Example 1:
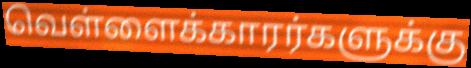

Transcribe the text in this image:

வெள்ளைக்காரர்களுக்கு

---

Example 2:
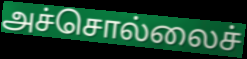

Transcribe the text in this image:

அச்சொல்லைச்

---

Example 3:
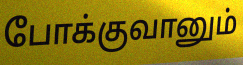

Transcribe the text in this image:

போக்குவானும்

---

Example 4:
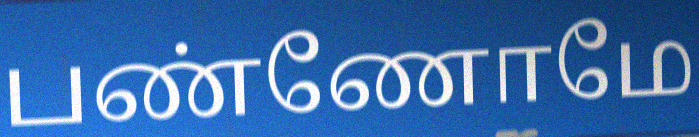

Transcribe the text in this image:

பண்ணோமே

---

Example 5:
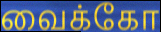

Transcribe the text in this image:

வைக்கோ